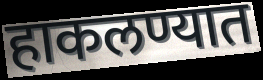
हाकलण्यात